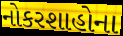
નોકરશાહોના